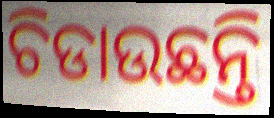
ଚିଡାଉଛନ୍ତି